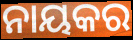
ନାୟକର